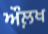
ਔਲ਼ਖ